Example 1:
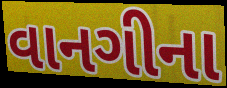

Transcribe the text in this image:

વાનગીના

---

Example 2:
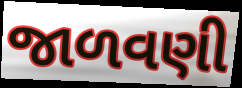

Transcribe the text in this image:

જાળવણી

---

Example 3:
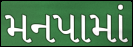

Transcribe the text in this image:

મનપામાં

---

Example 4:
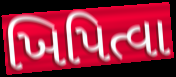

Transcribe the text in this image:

ખિપિત્વા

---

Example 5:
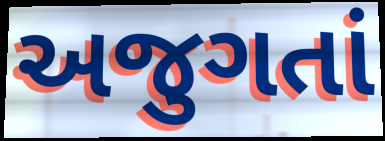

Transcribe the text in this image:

અજુગતાં